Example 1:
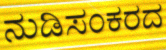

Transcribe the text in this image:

ನುಡಿಸಂಕರದ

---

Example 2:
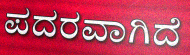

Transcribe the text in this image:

ಪದರವಾಗಿದೆ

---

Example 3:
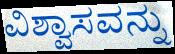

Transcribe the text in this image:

ವಿಶ್ವಾಸವನ್ನು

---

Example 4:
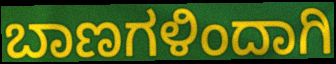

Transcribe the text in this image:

ಬಾಣಗಳಿಂದಾಗಿ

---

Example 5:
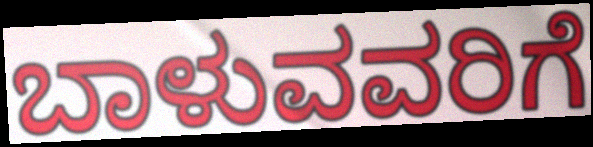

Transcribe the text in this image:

ಬಾಳುವವರಿಗೆ